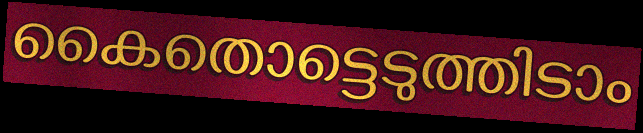
കൈതൊട്ടെടുത്തിടാം